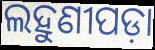
ଲହୁଣୀପଡ଼ା